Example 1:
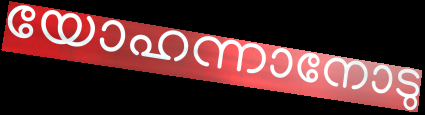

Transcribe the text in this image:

യോഹന്നാനോടു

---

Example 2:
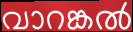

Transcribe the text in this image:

വാറങ്കൽ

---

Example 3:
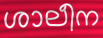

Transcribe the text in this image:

ശാലീന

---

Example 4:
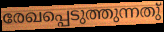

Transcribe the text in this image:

രേഖപ്പെടുത്തുന്നതു്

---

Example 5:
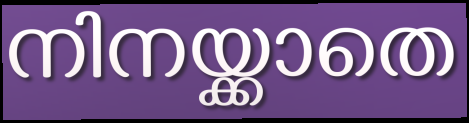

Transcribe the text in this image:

നിനയ്ക്കാതെ